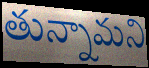
తున్నామని